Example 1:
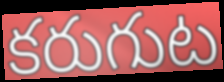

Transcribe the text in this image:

కరుగుట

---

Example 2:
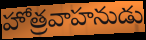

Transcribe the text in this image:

హోత్రవాహనుడు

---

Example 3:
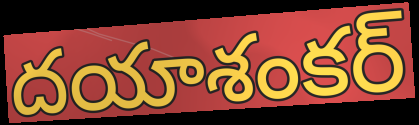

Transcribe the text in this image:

దయాశంకర్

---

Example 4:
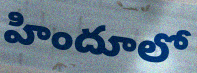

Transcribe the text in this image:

హిందూలో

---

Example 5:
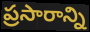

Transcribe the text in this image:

ప్రసారాన్ని